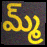
మ్మ్